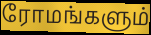
ரோமங்களும்